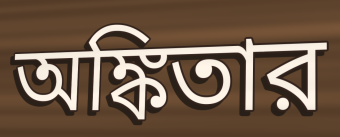
অঙ্কিতার